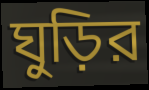
ঘুড়ির